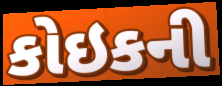
કોઇકની